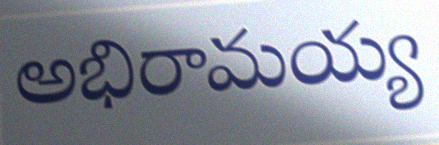
అభిరామయ్య